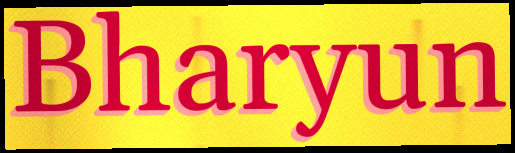
Bharyun